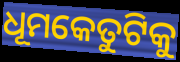
ଧୂମକେତୁଟିକୁ